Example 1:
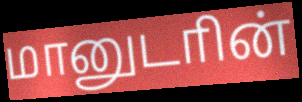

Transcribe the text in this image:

மானுடரின்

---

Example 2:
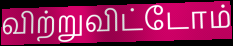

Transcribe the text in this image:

விற்றுவிட்டோம்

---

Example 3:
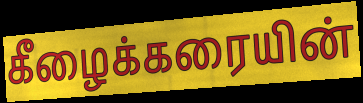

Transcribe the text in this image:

கீழைக்கரையின்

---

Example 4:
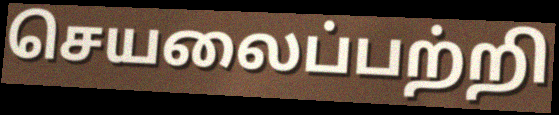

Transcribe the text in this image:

செயலைப்பற்றி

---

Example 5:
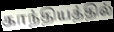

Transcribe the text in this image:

காந்தியத்தில்